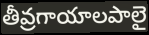
తీవ్రగాయాలపాలై